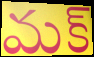
మక్